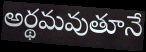
అర్థమవుతూనే